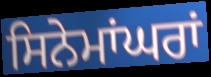
ਸਿਨੇਮਾਂਘਰਾਂ